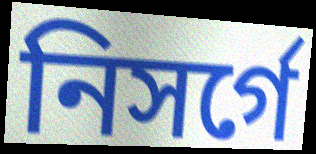
নিসর্গে